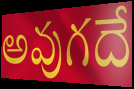
అవుగదే